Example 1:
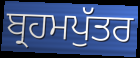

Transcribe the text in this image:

ਬ੍ਰਹਮਪੁੱਤਰ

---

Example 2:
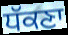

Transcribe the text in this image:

ਧੱਕਣਾ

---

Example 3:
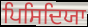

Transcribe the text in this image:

ਪਿਸਿਦਿਯਾ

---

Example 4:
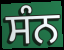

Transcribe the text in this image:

ਸੰਨ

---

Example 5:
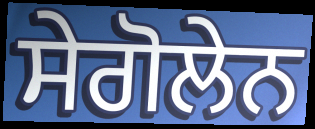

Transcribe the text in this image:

ਸੇਗੋਲੇਨ